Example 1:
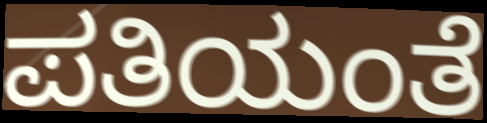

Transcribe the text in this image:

ಪತಿಯಂತೆ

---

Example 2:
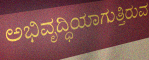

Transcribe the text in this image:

ಅಭಿವೃದ್ಧಿಯಾಗುತ್ತಿರುವ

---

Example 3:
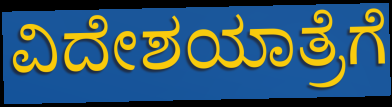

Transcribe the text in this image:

ವಿದೇಶಯಾತ್ರೆಗೆ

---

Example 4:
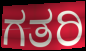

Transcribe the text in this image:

ಗತರಿ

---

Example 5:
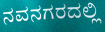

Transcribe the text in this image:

ನವನಗರದಲ್ಲಿ